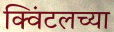
क्विंटलच्या